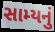
સામ્યનું